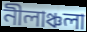
নীলাঞ্চলা